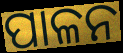
ପାଳନ